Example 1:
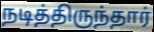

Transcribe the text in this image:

நடித்திருந்தார்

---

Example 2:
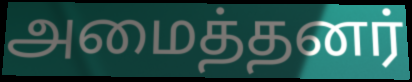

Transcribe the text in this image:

அமைத்தனர்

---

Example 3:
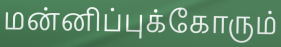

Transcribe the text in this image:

மன்னிப்புக்கோரும்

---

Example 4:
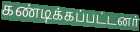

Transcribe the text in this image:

கண்டிக்கப்பட்டனர்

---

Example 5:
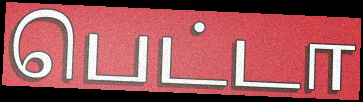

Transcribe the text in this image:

பெட்டா